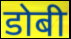
डोबी